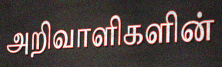
அறிவாளிகளின்